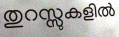
തുറസ്സുകളിൽ